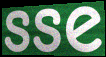
sse